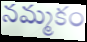
నమ్మకం